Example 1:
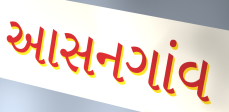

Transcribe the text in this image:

આસનગાંવ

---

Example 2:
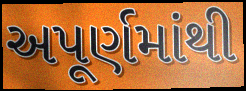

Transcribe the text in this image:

અપૂર્ણમાંથી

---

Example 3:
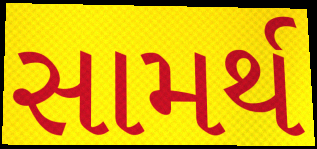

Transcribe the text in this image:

સામર્થ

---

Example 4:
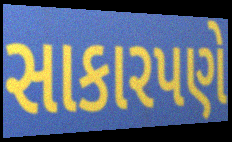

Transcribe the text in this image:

સાકારપણે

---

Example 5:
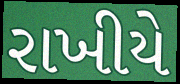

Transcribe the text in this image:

રાખીયે